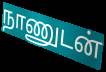
நாணுடன்